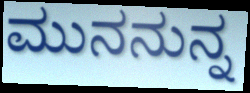
ಮುನನುನ್ನ